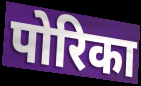
पोरिका